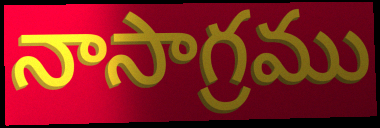
నాసాగ్రము